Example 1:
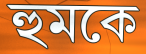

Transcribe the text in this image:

হুমকে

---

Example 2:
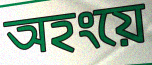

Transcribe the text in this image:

অহংয়ে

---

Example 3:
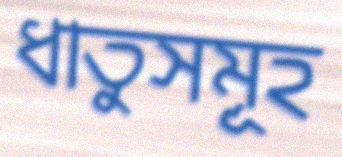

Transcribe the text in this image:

ধাতুসমূহ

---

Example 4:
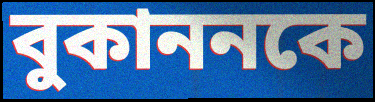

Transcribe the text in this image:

বুকাননকে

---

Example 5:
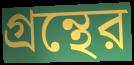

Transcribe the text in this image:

গ্রন্থের